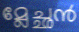
മ്ലേച്ഛൻ